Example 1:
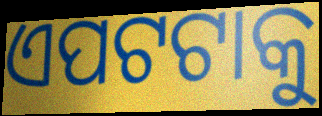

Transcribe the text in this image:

ଏପଟଟାକୁ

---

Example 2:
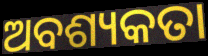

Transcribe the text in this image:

ଅବଶ୍ୟକତା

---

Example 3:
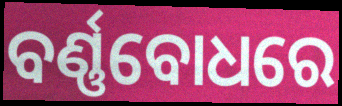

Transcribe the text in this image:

ବର୍ଣ୍ଣବୋଧରେ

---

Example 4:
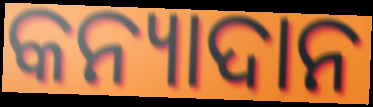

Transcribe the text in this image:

କନ୍ୟାଦାନ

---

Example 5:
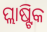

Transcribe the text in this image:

ପ୍ଲାଷ୍ଟିକ